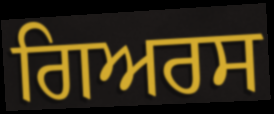
ਗਿਅਰਸ